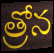
త్రోన